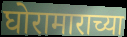
घोरामाराच्या